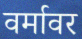
वर्मावर